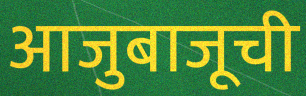
आजुबाजूची